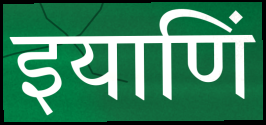
इयाणिं